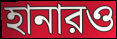
হানারও